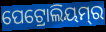
ପେଟ୍ରୋଲିୟମ୍‌ର